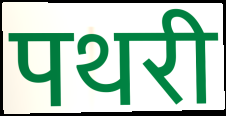
पथरी